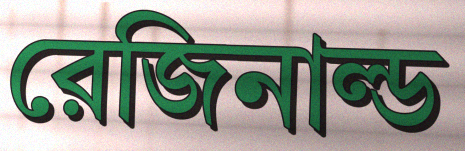
রেজিনাল্ড